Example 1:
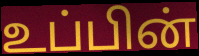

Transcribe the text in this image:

உப்பின்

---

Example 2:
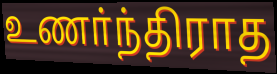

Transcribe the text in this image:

உணர்ந்திராத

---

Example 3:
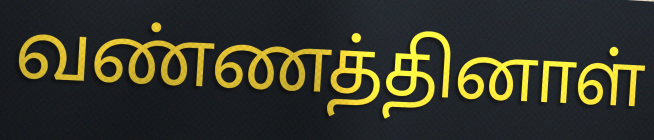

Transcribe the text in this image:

வண்ணத்தினாள்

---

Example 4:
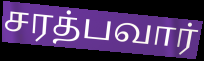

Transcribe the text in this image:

சரத்பவார்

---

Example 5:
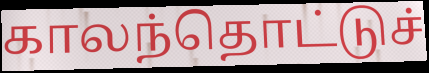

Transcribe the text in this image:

காலந்தொட்டுச்